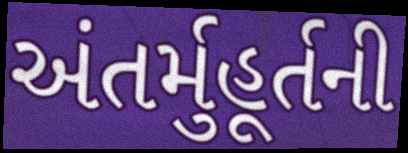
અંતર્મુહૂર્તની